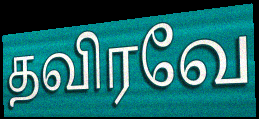
தவிரவே